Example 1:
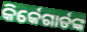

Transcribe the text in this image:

କିର୍କେଗାର୍ଡଙ୍କ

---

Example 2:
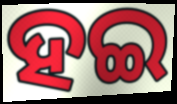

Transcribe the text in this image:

ହଇ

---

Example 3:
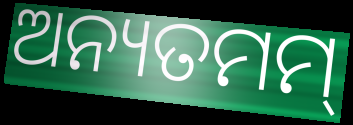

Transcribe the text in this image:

ଅନ୍ୟତମମ୍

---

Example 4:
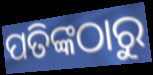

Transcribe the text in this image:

ପତିଙ୍କଠାରୁ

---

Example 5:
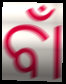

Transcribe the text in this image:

ବାଁ